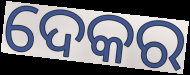
ଦେକର